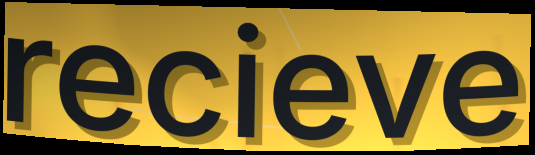
recieve